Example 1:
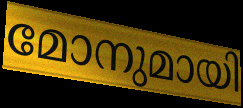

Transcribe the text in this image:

മോനുമായി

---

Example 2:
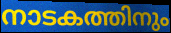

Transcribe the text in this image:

നാടകത്തിനും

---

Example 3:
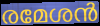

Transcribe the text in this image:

രമേശൻ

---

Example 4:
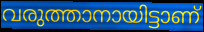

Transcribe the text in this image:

വരുത്താനായിട്ടാണ്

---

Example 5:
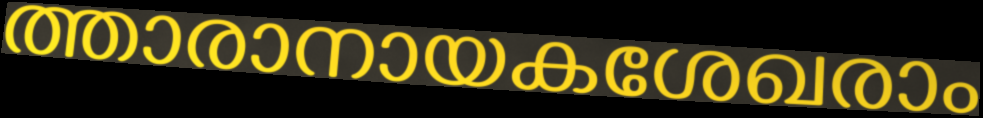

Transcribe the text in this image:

ത്താരാനായകശേഖരാം